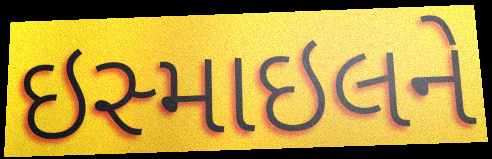
ઇસ્માઇલને